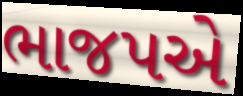
ભાજપએ